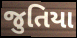
જુતિયા